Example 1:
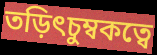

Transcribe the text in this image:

তড়িৎচুম্বকত্বে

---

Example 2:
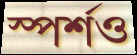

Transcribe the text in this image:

স্পর্শও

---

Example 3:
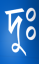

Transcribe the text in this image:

দুঃ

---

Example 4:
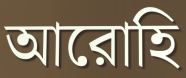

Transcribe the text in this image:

আরোহি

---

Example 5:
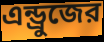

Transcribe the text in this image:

এন্ড্রুজের